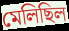
মেলিছিল